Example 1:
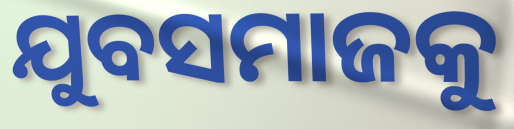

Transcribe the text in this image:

ଯୁବସମାଜକୁ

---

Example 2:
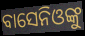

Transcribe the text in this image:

ବାସେନିଓଙ୍କୁ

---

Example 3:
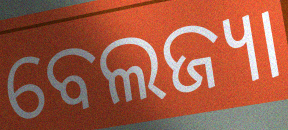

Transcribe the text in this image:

ବେଲଜ୍ୟା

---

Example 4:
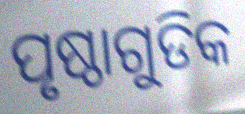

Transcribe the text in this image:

ପୃଷ୍ଠାଗୁଡିକ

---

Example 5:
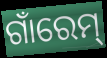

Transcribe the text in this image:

ଗାଁରେମ୍